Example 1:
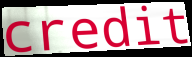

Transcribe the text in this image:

credit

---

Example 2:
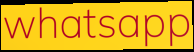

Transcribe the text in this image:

whatsapp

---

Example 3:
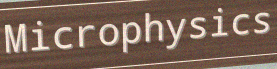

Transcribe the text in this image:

Microphysics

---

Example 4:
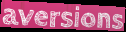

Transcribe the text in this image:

aversions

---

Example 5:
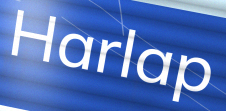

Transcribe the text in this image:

Harlap